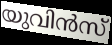
യുവിൻസ്